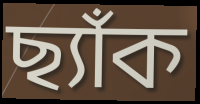
ছ্যাঁক